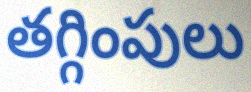
తగ్గింపులు